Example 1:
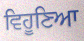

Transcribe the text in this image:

ਵਿਹੂਣਿਆ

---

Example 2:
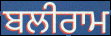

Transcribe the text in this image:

ਬਲੀਰਾਮ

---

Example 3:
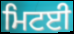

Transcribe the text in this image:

ਮਿਟਈ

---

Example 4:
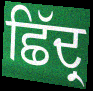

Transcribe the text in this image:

ਛਿੱਦ੍ਰ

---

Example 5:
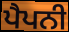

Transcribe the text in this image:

ਪੈਪਨੀ